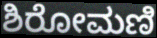
ಶಿರೋಮಣಿ